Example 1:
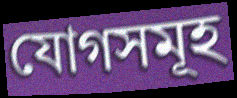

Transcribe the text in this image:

যোগসমূহ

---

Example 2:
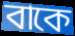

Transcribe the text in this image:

বাকে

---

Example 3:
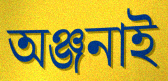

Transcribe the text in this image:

অঞ্জনাই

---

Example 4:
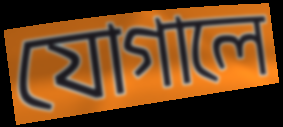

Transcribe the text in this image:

যোগালে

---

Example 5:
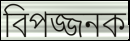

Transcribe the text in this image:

বিপজ্জনক